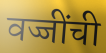
वज्जींची